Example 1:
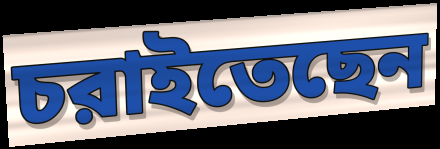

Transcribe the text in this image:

চরাইতেছেন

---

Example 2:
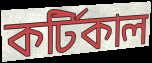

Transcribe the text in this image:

কর্টিকাল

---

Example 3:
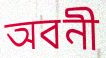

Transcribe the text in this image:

অবনী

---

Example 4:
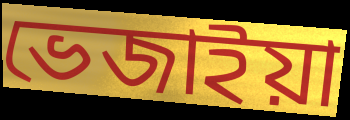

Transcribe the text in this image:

ভেজাইয়া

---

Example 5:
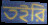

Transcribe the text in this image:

তইরি